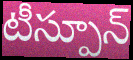
టీస్పూన్